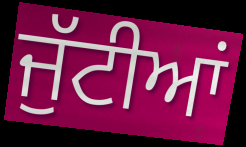
ਜੁੱਟੀਆਂ